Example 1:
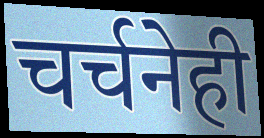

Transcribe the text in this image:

चर्चनेही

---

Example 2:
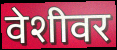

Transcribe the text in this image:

वेशीवर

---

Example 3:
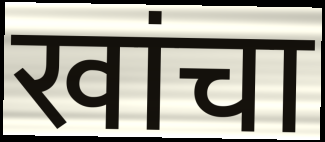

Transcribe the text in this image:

खांचा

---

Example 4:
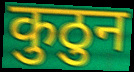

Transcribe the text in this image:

कुठुन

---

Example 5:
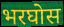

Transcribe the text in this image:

भरघोस